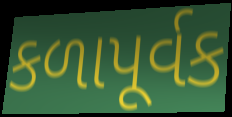
કળાપૂર્વક